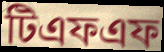
টিএফএফ